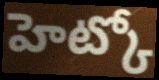
హెట్కో